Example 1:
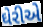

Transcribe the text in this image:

ઘેરીએ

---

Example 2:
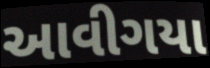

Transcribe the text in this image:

આવીગયા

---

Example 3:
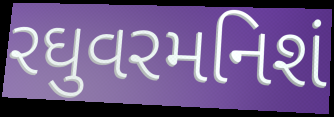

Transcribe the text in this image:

રઘુવરમનિશં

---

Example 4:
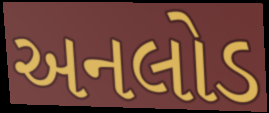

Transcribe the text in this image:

અનલોડ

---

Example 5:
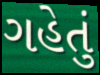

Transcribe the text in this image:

ગહેતું